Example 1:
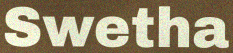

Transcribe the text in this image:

Swetha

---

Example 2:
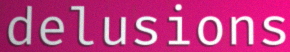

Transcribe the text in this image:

delusions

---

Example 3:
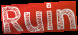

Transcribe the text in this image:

Ruin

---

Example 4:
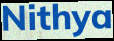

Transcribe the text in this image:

Nithya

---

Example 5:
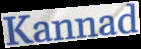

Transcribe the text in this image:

Kannad